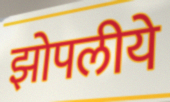
झोपलीये